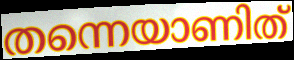
തന്നെയാണിത്